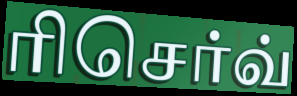
ரிசெர்வ்